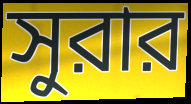
সুরার